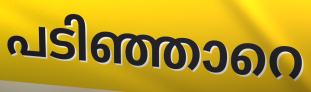
പടിഞ്ഞാറെ